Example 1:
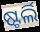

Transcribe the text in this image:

ଷ୍ଟର୍ଲି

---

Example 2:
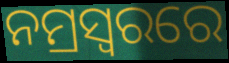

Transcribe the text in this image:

ନମ୍ରସ୍ୱରରେ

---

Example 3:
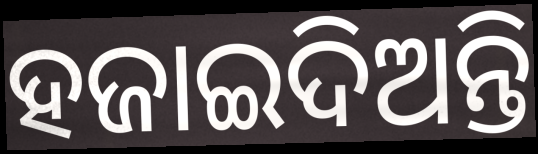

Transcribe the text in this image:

ହଜାଇଦିଅନ୍ତି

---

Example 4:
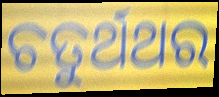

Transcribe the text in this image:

ଚତୁର୍ଥଥର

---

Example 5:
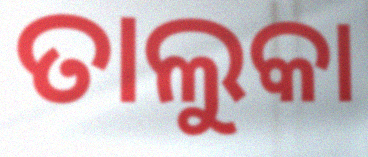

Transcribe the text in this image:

ତାଲୁକା